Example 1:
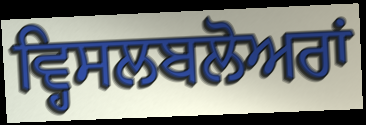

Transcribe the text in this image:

ਵ੍ਹਿਸਲਬਲੋਅਰਾਂ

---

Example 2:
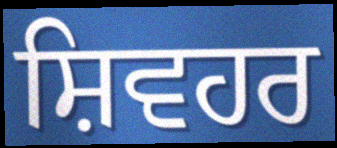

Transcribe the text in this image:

ਸ਼ਿਵਹਰ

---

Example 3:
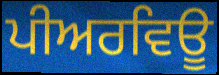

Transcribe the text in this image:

ਪੀਅਰਵਿਊ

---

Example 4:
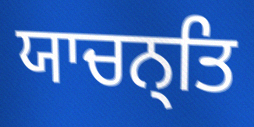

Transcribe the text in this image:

ਯਾਚਨ੍ਤਿ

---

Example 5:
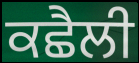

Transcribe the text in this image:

ਕਛੈਲੀ